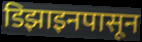
डिझाइनपासून